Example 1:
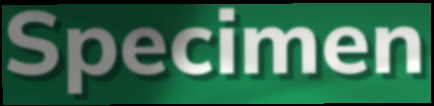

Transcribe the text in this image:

Specimen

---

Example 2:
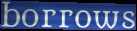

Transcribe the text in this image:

borrows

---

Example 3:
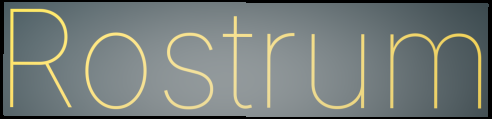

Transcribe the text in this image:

Rostrum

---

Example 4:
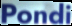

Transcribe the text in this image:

Pondi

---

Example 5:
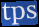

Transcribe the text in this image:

tps